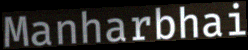
Manharbhai